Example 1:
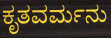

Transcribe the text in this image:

ಕೃತವರ್ಮನು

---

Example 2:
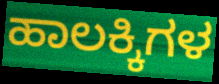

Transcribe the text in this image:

ಹಾಲಕ್ಕಿಗಳ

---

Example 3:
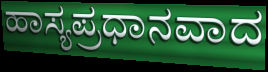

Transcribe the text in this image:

ಹಾಸ್ಯಪ್ರಧಾನವಾದ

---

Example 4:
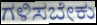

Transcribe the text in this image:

ಗಳಿಸಬೇಕು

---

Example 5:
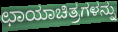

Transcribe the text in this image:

ಛಾಯಾಚಿತ್ರಗಳನ್ನು